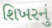
શિખરનું